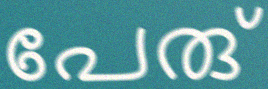
പേരു്